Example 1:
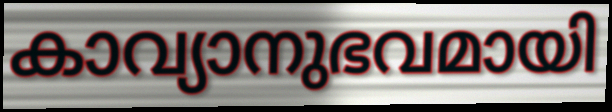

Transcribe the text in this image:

കാവ്യാനുഭവമായി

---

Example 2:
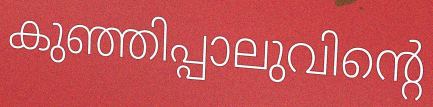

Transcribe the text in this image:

കുഞ്ഞിപ്പാലുവിന്റെ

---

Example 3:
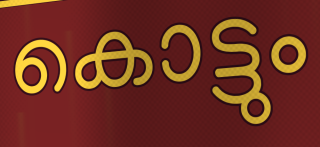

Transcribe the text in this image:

കൊട്ടും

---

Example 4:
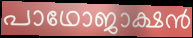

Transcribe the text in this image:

പാഥോജാക്ഷൻ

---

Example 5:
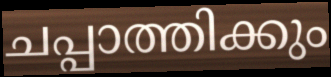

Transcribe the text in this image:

ചപ്പാത്തിക്കും